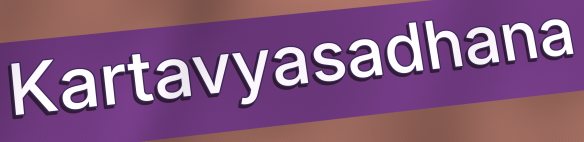
Kartavyasadhana